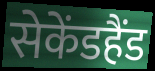
सेकेंडहैंड